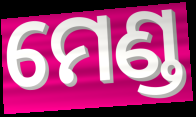
ମେଣ୍ଡ